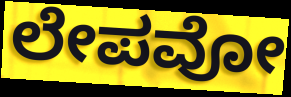
ಲೇಪವೋ